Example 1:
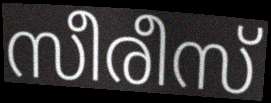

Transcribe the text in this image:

സീരീസ്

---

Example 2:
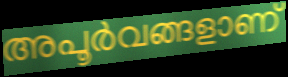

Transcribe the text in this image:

അപൂർവങ്ങളാണ്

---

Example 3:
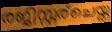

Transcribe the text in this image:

രജിസ്റ്റര്ചെയ്ത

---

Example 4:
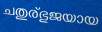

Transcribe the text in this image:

ചതുര്ഭുജയായ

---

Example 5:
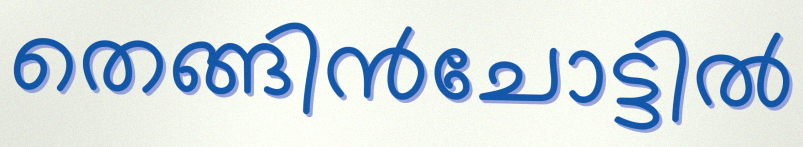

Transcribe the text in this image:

തെങ്ങിൻചോട്ടിൽ